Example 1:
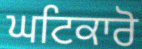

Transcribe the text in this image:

ਘਟਿਕਾਰੋ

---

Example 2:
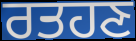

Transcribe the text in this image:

ਰਤਹਣ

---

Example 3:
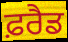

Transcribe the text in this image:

ਫ਼ਰੈਡ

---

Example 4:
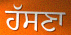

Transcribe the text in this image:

ਹੱਸਣਾ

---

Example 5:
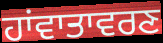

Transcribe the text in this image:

ਹਾਂਵਾਤਾਵਰਣ